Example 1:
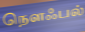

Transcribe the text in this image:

நௌஃபல்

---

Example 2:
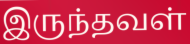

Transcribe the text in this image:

இருந்தவள்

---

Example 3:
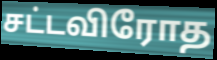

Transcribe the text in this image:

சட்டவிரோத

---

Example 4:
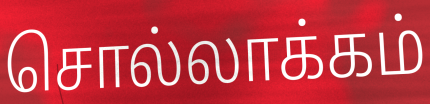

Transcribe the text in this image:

சொல்லாக்கம்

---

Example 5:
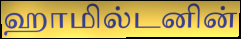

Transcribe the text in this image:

ஹாமில்டனின்